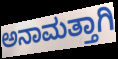
ಅನಾಮತ್ತಾಗಿ